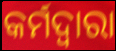
କର୍ମଦ୍ୱାରା